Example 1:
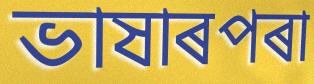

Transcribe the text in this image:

ভাষাৰপৰা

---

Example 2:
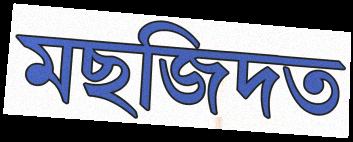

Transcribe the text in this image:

মছজিদত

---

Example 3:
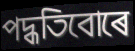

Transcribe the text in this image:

পদ্ধতিবোৰে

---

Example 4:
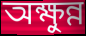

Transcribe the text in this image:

অক্ষুন্ন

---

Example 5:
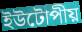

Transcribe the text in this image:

ইউটোপীয়